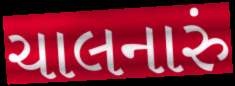
ચાલનારું